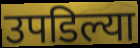
उपडिल्या